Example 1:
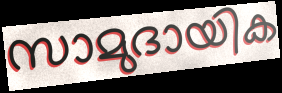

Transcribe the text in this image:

സാമുദായിക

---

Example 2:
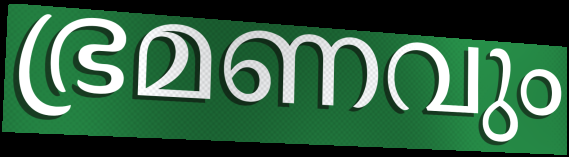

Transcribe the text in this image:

ഭ്രമണവും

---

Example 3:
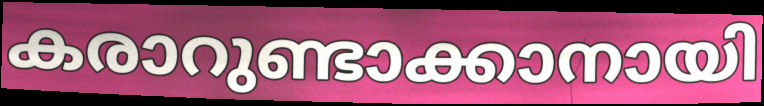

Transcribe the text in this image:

കരാറുണ്ടാക്കാനായി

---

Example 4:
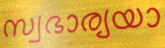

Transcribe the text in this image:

സ്വഭാര്യയാ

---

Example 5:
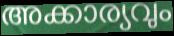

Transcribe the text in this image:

അക്കാര്യവും